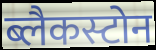
ब्‍लैकस्‍टोन